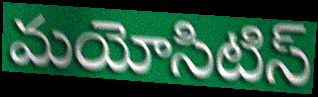
మయోసిటిస్